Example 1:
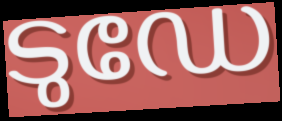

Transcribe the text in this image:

ടുഡേ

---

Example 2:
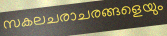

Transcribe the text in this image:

സകലചരാചരങ്ങളെയും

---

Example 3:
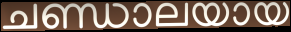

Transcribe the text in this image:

ചണ്ഡാലയായ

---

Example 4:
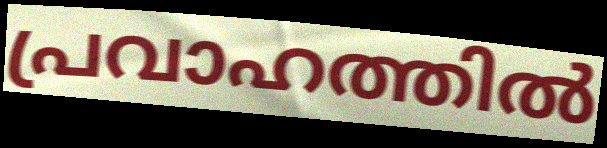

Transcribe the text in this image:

പ്രവാഹത്തിൽ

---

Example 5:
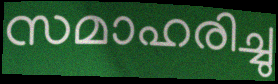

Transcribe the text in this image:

സമാഹരിച്ചു